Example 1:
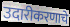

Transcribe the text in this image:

उदारीकरणाचे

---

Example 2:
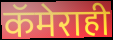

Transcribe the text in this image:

कॅमेराही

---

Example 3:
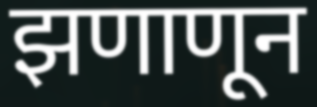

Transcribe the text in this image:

झणाणून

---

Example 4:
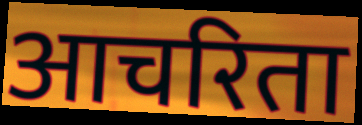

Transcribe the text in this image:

आचरिता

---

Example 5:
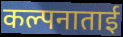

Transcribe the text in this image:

कल्पनाताई